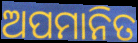
ଅପମାନିତ